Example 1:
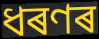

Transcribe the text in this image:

ধৰণৰ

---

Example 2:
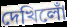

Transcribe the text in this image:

দেখিলোঁ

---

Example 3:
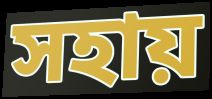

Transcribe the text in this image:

সহায়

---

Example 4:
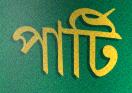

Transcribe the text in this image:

পাৰ্টি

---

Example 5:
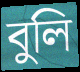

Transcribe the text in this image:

বুলি